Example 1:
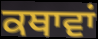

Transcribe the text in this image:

ਕਥਾਵਾਂ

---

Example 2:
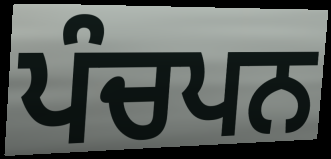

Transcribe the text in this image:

ਪੰਚਪਨ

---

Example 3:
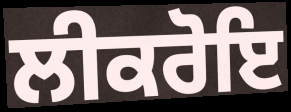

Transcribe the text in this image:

ਲੀਕਰੋਇ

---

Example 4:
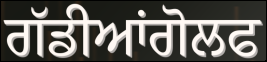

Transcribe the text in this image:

ਗੱਡੀਆਂਗੋਲਫ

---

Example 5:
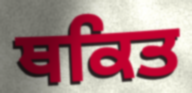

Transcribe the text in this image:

ਥਕਿਤ